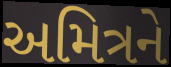
અમિત્રને